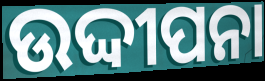
ଉଦ୍ଦୀପନା